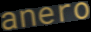
anero